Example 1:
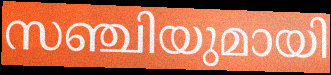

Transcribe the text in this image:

സഞ്ചിയുമായി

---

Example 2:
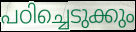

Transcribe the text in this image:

പഠിച്ചെടുക്കും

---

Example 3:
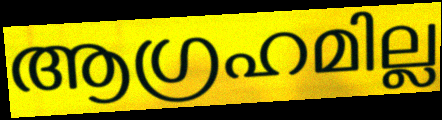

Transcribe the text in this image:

ആഗ്രഹമില്ല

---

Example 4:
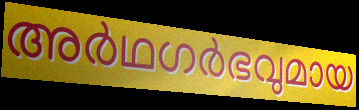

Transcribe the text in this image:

അർഥഗർഭവുമായ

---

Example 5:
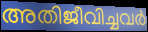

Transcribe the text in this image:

അതിജീവിച്ചവർ